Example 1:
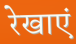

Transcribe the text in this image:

रेखाएं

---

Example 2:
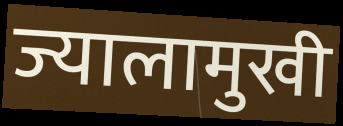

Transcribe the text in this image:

ज्यालामुखी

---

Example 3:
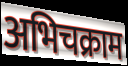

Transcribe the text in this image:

अभिचक्राम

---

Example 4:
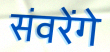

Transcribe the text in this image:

संवरेंगे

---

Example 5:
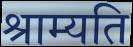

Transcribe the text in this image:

श्राम्यति